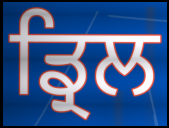
ਡ੍ਰਿਲ